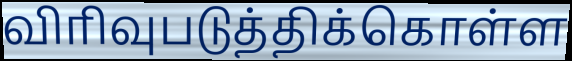
விரிவுபடுத்திக்கொள்ள